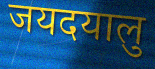
जयदयालु